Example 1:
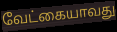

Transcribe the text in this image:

வேட்கையாவது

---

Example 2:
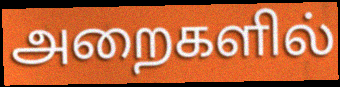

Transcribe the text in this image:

அறைகளில்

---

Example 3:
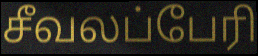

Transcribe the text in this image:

சீவலப்பேரி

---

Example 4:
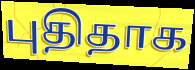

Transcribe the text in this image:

புதிதாக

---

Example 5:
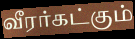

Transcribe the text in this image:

வீரர்கட்கும்